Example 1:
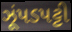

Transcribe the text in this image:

ઝૂંપડપટ્ટી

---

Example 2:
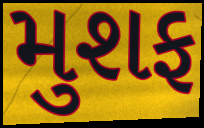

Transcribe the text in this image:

મુશફ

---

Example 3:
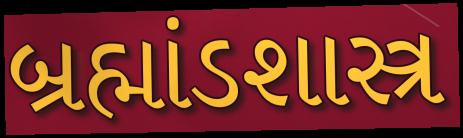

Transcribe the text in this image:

બ્રહ્માંડશાસ્ત્ર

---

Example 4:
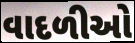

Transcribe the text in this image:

વાદળીઓ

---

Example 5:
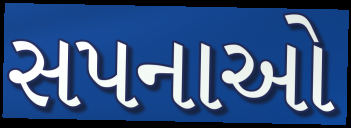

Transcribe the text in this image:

સપનાઓ